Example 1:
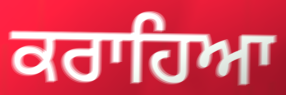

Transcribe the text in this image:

ਕਰਾਹਿਆ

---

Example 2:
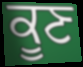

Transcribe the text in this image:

ਕੂਣ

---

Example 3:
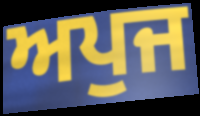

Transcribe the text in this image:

ਅਪੁਜ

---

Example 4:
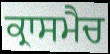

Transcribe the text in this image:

ਕ੍ਰਾਸਮੈਚ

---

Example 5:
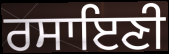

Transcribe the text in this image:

ਰਸਾਇਣੀ